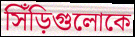
সিঁড়িগুলোকে